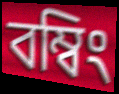
বম্বিং